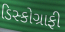
ડિસ્કોગ્રાફી